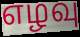
எழவு